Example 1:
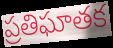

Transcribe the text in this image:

ప్రతిఘాతక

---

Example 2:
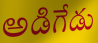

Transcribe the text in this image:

అడిగేడు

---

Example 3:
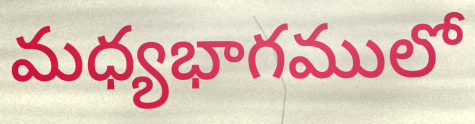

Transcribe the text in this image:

మధ్యభాగములో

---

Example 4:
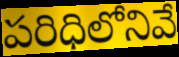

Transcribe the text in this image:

పరిధిలోనివే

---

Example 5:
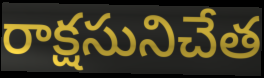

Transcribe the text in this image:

రాక్షసునిచేత